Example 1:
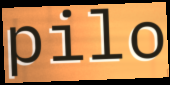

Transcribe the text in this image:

pilo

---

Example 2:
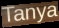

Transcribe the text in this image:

Tanya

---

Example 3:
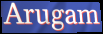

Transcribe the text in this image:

Arugam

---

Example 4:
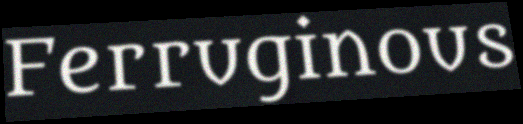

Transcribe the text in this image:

Ferruginous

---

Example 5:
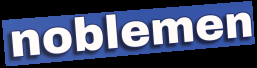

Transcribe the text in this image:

noblemen